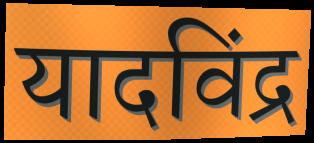
यादविंद्र